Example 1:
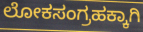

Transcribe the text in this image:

ಲೋಕಸಂಗ್ರಹಕ್ಕಾಗಿ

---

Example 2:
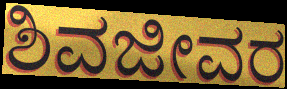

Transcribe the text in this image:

ಶಿವಜೀವರ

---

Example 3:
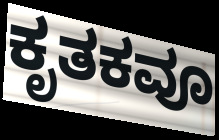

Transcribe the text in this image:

ಕೃತಕವೂ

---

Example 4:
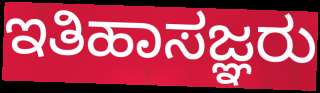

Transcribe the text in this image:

ಇತಿಹಾಸಜ್ಞರು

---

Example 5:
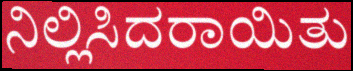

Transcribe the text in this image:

ನಿಲ್ಲಿಸಿದರಾಯಿತು